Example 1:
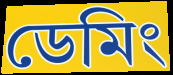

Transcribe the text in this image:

ডেমিং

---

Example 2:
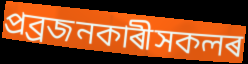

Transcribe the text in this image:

প্ৰব্ৰজনকাৰীসকলৰ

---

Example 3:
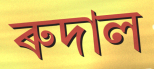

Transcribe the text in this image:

ৰুদাল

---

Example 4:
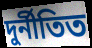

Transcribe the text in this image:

দুৰ্নীতিত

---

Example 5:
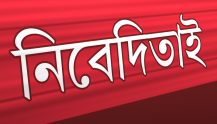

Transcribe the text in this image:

নিবেদিতাই